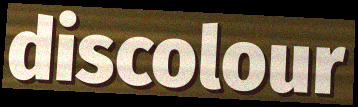
discolour